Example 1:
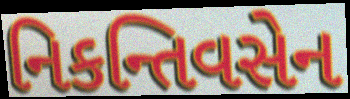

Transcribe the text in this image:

નિકન્તિવસેન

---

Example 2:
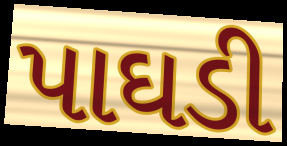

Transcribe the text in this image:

પાઘડી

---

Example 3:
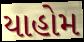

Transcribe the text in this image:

યાહોમ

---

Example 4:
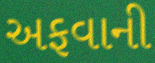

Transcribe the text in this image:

અફવાની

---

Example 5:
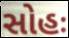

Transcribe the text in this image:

સોહઃ